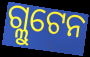
ଗ୍ଲୁଟେନ